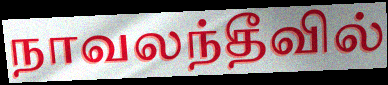
நாவலந்தீவில்